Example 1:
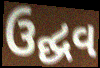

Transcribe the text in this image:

ઉદ્ઘવ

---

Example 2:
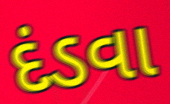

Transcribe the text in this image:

દંડવા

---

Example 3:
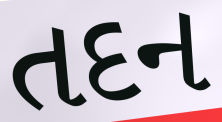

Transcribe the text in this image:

તદન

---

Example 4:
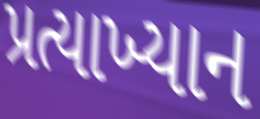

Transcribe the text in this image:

પ્રત્યાખ્યાન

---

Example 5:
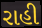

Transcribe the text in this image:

રાહી